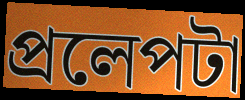
প্রলেপটা